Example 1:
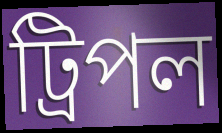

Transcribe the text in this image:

ট্রিপল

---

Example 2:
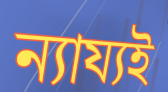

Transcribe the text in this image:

ন্যায্যই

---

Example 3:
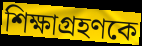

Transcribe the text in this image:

শিক্ষাগ্রহণকে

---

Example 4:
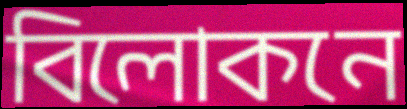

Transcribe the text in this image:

বিলোকনে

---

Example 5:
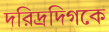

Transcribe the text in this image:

দরিদ্রদিগকে